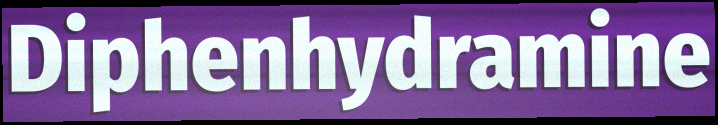
Diphenhydramine